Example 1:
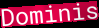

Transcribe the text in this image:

Dominis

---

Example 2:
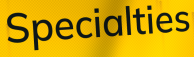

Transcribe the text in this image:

Specialties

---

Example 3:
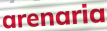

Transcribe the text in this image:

arenaria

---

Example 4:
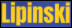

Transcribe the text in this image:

Lipinski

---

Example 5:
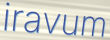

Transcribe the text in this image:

iravum